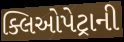
ક્લિઓપેટ્રાની